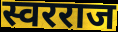
स्वरराज